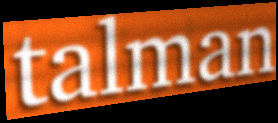
talman